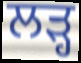
ਲੜ੍ਹ